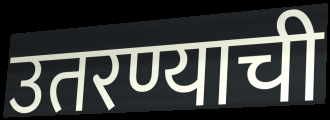
उतरण्याची